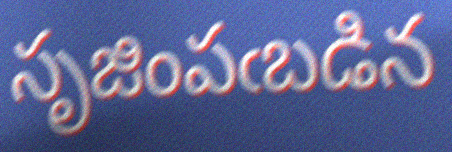
సృజింపఁబడిన